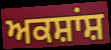
ਅਕਸ਼ਾਂਸ਼